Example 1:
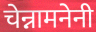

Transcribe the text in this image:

चेन्नामनेनी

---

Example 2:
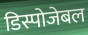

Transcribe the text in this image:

डिस्पोजेबल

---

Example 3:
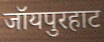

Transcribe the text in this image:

जॉयपुरहाट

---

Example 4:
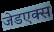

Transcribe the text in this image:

जेडएक्स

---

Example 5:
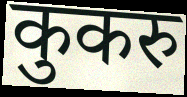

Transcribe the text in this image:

कुकरु